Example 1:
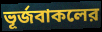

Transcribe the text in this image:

ভূর্জবাকলের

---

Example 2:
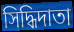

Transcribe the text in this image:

সিদ্ধিদাতা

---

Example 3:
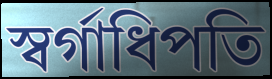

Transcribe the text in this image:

স্বর্গাধিপতি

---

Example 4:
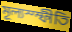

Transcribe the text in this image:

মূল্যস্ম্ফীতি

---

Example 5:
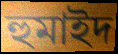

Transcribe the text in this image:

হুমাইদ